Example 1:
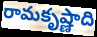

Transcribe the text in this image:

రామకృష్ణాది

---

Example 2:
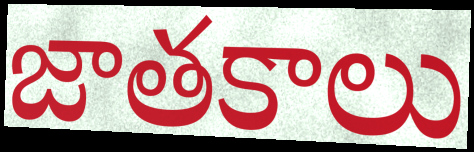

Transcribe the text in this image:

జాతకాలు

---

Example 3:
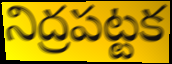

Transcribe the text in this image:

నిద్రపట్టక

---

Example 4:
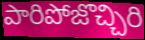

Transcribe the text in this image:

పారిపోజొచ్చిరి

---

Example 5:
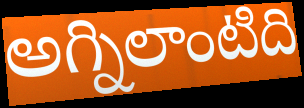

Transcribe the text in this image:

అగ్నిలాంటిది